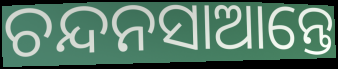
ଚନ୍ଦନସାଆନ୍ତେ